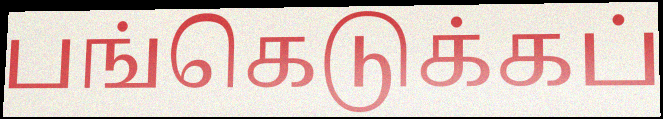
பங்கெடுக்கப்